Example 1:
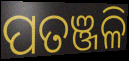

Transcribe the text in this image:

ପତଞ୍ଜଳି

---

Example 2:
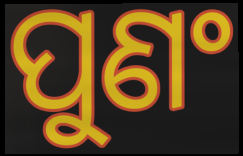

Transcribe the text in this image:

ପୁଣଂ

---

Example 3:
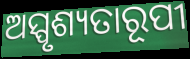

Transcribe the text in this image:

ଅସ୍ପୃଶ୍ୟତାରୂପୀ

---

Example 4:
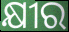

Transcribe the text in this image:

କ୍ଷୀର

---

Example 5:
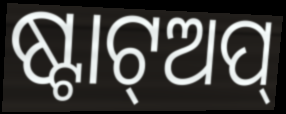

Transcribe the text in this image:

ଷ୍ଟାଟ୍ଅପ୍